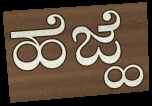
ಹೆಜ್ಹೆ